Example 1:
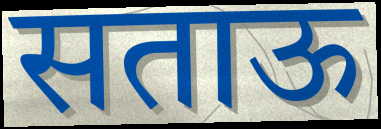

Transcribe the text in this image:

सताऊ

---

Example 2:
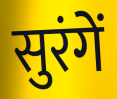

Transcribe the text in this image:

सुरंगें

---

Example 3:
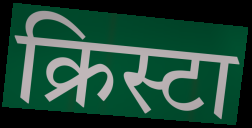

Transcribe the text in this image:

क्रिस्टा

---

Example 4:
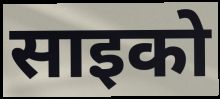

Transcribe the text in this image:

साइको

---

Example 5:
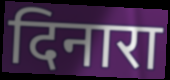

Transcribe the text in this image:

दिनारा